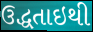
ઉદ્ધતાઇથી